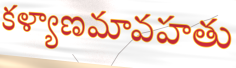
కళ్యాణమావహతు